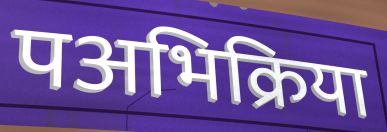
पअभिक्रिया